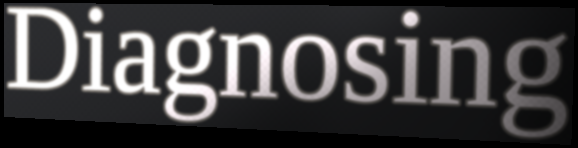
Diagnosing